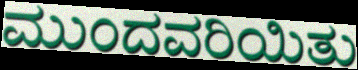
ಮುಂದವರಿಯಿತು